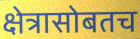
क्षेत्रासोबतच